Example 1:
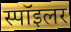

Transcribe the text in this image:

स्पॉइलर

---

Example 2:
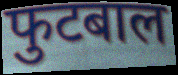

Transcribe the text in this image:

फुटबाल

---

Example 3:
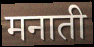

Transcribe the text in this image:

मनाती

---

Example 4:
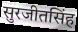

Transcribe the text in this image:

सुरजीतसिंह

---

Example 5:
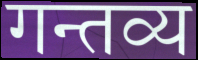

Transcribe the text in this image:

गन्तव्य